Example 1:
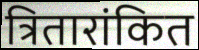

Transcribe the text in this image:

त्रितारांकित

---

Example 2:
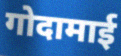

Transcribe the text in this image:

गोदामाई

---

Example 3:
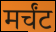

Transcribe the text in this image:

मर्चंट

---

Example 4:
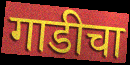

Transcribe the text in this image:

गाडीचा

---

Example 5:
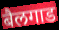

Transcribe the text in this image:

बैलगाड